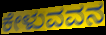
ಕೇಳುವವನ